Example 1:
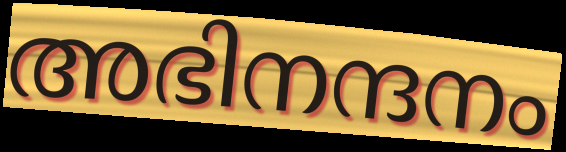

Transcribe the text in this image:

അഭിനന്ദനം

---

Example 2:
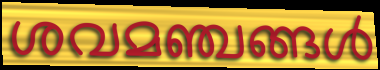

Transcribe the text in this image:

ശവമഞ്ചങ്ങൾ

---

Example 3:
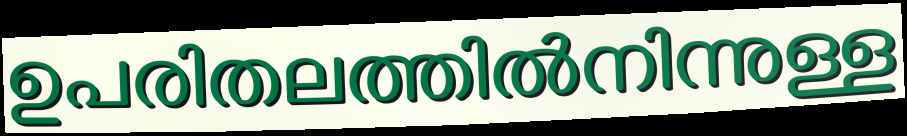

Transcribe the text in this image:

ഉപരിതലത്തിൽനിന്നുള്ള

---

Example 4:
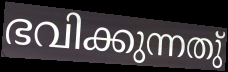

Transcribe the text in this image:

ഭവിക്കുന്നതു്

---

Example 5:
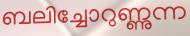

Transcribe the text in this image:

ബലിച്ചോറുണ്ണുന്ന